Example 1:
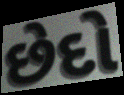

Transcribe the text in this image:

છેદો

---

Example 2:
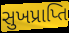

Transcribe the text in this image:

સુખપ્રાપ્તિ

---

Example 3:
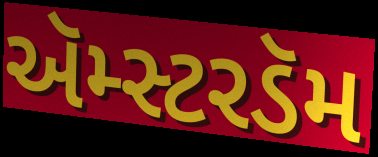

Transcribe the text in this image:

ઍમ્સ્ટરડૅમ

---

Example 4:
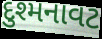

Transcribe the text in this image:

દુશ્મનાવટ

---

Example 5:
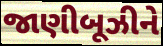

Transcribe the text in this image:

જાણીબૂઝીને